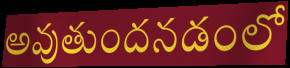
అవుతుందనడంలో